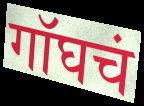
गॉघचं